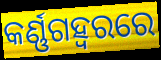
କର୍ଣ୍ଣଗହ୍ଵରରେ